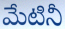
మేటినీ